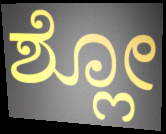
ಶ್ಲೋ